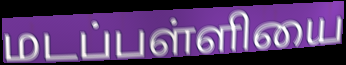
மடப்பள்ளியை